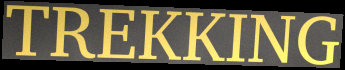
TREKKING